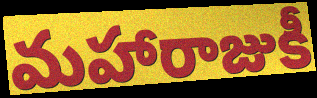
మహారాజుకీ